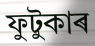
ফুটুকাৰ